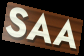
SAA